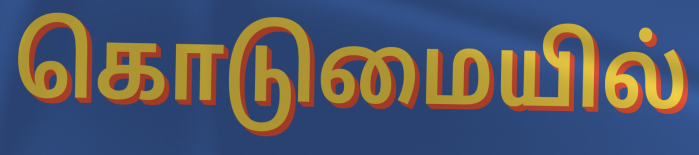
கொடுமையில்